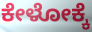
ಕೇಳೋಕ್ಕೆ